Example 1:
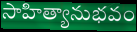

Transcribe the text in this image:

సాహిత్యానుభవం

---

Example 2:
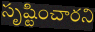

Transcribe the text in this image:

సృష్టించారని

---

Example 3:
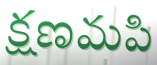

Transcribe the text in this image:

క్షణమపి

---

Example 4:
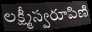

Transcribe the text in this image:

లక్ష్మీస్వరూపిణి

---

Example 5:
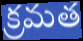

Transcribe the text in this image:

క్రమత